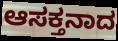
ಆಸಕ್ತನಾದ